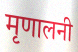
मृणालनी